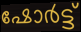
ഷോർട്ട്